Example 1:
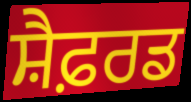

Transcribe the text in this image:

ਸ਼ੈਫ਼ਰਡ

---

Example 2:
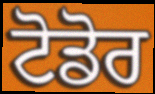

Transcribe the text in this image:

ਟੋਡੋਰ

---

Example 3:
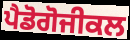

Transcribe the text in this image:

ਪੈਡੋਗੋਜੀਕਲ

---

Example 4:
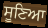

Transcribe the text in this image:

ਸੂਣਿਆ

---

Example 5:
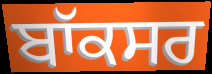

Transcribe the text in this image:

ਬਾੱਕਸਰ